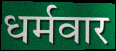
धर्मवार